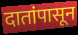
दातांपासून